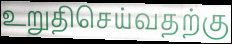
உறுதிசெய்வதற்கு